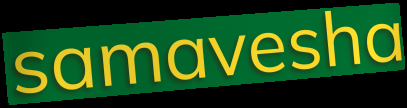
samavesha